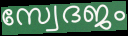
സ്വേദജം